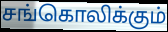
சங்கொலிக்கும்